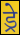
ड्रे